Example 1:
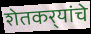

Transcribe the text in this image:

शेतकर्‍यांचे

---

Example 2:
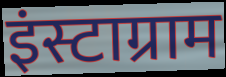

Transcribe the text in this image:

इंस्टाग्राम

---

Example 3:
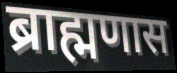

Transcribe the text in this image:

ब्राह्मणास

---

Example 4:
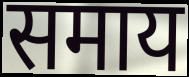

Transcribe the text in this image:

समाय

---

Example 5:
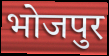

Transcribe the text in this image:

भोजपुर